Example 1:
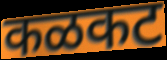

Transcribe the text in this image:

कळकट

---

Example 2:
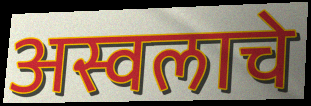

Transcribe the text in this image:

अस्वलाचे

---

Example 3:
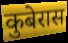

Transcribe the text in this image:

कुबेरास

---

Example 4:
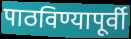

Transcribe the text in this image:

पाठविण्यापूर्वी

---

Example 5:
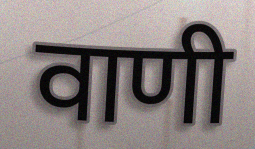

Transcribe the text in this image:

वाणी